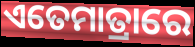
ଏତେମାତ୍ରାରେ